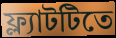
ফ্ল্যাটটিতে